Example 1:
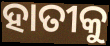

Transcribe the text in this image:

ହାତୀକୁ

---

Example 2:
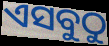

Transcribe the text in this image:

ଏସବୁଠୁ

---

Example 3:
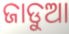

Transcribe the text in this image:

ଜାଡୁଆ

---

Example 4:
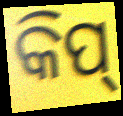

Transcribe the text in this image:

କିପ୍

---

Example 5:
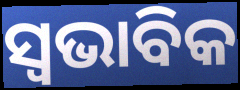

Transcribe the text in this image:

ସ୍ଵଭାବିକ